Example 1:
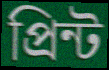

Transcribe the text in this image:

প্রিন্ট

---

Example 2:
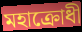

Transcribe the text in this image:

মহাক্রোধী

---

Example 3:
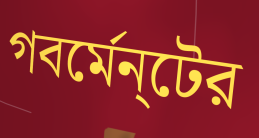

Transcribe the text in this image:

গবর্মেন্‌টের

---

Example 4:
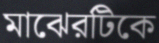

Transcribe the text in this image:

মাঝেরটিকে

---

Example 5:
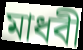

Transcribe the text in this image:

মাধবী